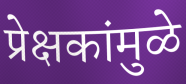
प्रेक्षकांमुळे